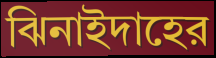
ঝিনাইদাহের